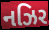
નઝિર